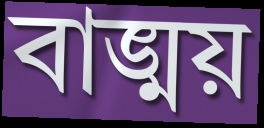
বাঙ্ময়